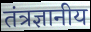
तंत्रज्ञानीय